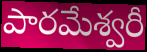
పారమేశ్వరీ